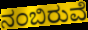
ನಂಬಿರುವೆ